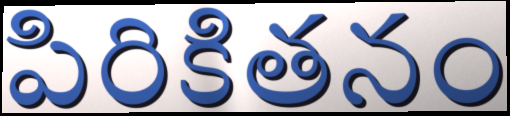
పిరికితనం